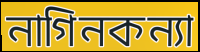
নাগিনকন্যা